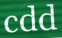
cdd